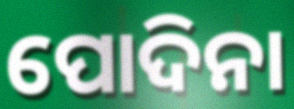
ପୋଦିନା